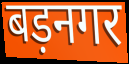
बड़नगर